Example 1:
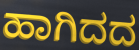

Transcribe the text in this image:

ಹಾಗಿದದ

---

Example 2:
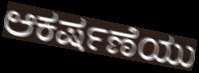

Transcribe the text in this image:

ಆಕರ್ಷಣೆಯು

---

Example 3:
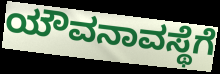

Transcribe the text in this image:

ಯೌವನಾವಸ್ಥೆಗೆ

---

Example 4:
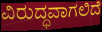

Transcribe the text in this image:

ವಿರುದ್ಧವಾಗಲಿದೆ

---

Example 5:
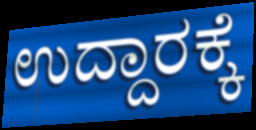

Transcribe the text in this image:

ಉದ್ದಾರಕ್ಕೆ